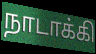
நாடாக்கி